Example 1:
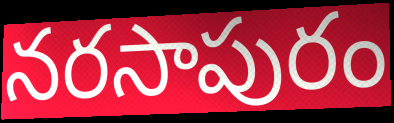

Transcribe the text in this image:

నరసాపురం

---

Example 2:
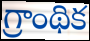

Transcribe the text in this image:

గ్రాంథిక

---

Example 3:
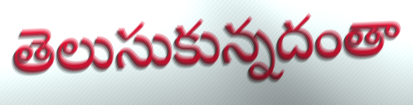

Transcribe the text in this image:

తెలుసుకున్నదంతా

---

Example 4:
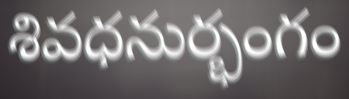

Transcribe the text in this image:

శివధనుర్భంగం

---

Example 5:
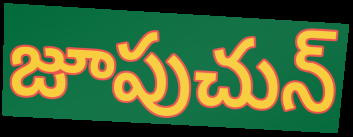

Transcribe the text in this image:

జూపుచున్